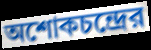
অশোকচন্দ্রের